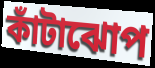
কাঁটাঝোপ